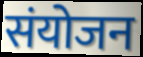
संयोजन